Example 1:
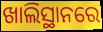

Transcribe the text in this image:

ଖାଲିସ୍ଥାନରେ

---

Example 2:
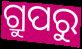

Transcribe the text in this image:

ଗ୍ରୁପରୁ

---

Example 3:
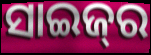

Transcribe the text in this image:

ସାଇଜ୍‌ର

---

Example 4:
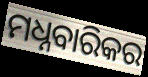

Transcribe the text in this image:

ମଧ୍ନବାରିକର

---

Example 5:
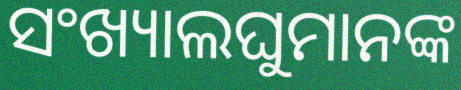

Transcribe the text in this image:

ସଂଖ୍ୟାଲଘୁମାନଙ୍କ